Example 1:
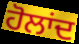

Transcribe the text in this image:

ਹੋਲਾਂਦ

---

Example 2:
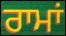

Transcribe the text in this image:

ਰਾਮਾਂ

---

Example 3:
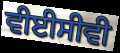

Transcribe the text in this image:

ਵੀਈਸੀਵੀ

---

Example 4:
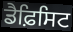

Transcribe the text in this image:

ਡੈਫ਼ਿਸਿਟ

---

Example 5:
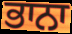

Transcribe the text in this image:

ਭਾਨਾ